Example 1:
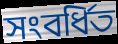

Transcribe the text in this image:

সংবর্ধিত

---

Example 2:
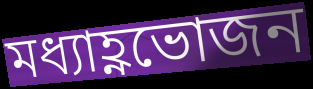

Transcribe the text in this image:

মধ্যাহ্ণভোজন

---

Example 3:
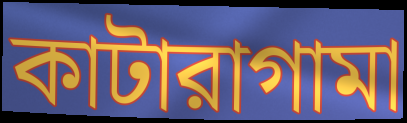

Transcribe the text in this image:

কাটারাগামা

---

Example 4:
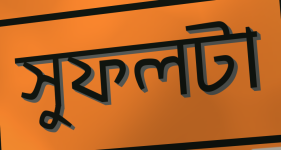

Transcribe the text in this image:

সুফলটা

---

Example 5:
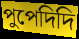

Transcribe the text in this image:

পুপেদিদি